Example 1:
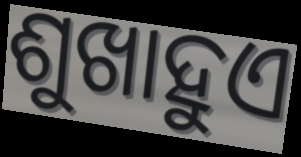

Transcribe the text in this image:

ଶୁଖାହୁଏ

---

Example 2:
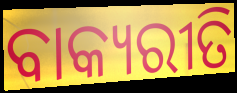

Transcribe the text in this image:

ବାକ୍ୟରୀତି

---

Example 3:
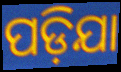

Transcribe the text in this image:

ପଡ଼ିଯା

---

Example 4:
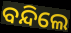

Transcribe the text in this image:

ବନ୍ଦିଲେ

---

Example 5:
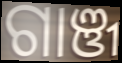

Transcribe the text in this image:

ଗାଞ୍ଜ